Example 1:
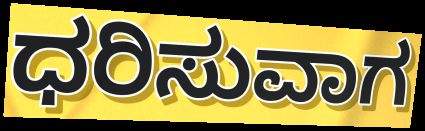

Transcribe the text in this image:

ಧರಿಸುವಾಗ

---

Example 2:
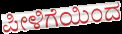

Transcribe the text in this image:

ಪೀಳಿಗೆಯಿಂದ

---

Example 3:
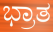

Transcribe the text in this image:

ಭ್ರಾತ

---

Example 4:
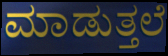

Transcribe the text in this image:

ಮಾಡುತ್ತಲೆ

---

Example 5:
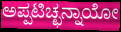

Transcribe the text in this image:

ಅಪ್ಪಟಿಚ್ಛನ್ನಾಯೋ